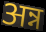
अन्न